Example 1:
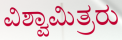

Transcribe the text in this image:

ವಿಶ್ವಾಮಿತ್ರರು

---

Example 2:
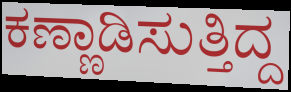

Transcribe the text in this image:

ಕಣ್ಣಾಡಿಸುತ್ತಿದ್ದ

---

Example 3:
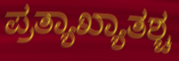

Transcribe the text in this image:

ಪ್ರತ್ಯಾಖ್ಯಾತಶ್ಚ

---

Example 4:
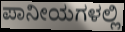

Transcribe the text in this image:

ಪಾನೀಯಗಳಲ್ಲಿ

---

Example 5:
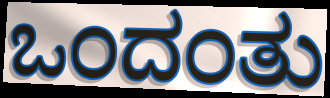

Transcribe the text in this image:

ಒಂದಂತು